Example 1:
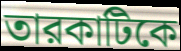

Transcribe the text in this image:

তারকাটিকে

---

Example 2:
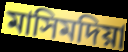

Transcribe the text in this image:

মাসিমদিয়া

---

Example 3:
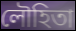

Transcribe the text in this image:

লৌহিতা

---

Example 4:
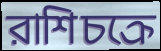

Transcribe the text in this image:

রাশিচক্রে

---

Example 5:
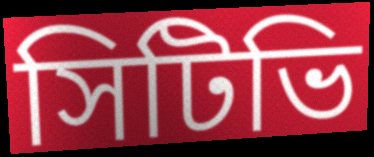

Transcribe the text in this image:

সিটিভি